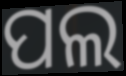
ପଲ